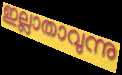
ഇല്ലാതാവുന്നു